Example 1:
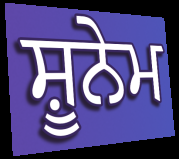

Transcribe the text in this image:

ਸ਼ੂਨੇਮ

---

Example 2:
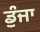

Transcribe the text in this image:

ਡੁੰਜਾ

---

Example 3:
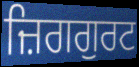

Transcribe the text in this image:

ਜ਼ਿਗਗੁਰਟ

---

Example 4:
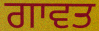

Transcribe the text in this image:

ਗਾਵਤ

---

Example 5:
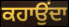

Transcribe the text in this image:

ਕਹਾਉਂਦਾ